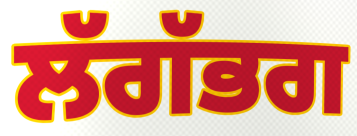
ਲੱਗੱਭਗ